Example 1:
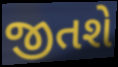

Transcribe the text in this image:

જીતશે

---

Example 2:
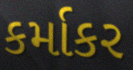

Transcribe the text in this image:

કર્માકર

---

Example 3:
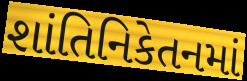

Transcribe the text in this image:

શાંતિનિકેતનમાં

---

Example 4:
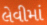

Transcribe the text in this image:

લેવીમાં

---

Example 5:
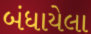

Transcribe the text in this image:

બંધાયેલા